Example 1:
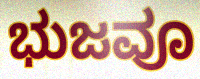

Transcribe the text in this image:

ಭುಜವೂ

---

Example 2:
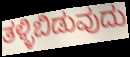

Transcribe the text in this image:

ತಳ್ಳಿಬಿಡುವುದು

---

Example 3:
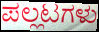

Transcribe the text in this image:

ಪಲ್ಲಟಗಳು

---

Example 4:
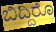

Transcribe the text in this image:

ಬಿದ್ದಿರೊ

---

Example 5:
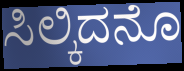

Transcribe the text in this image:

ಸಿಲ್ಕಿದನೊ